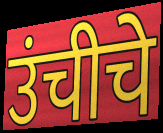
उंचीचे